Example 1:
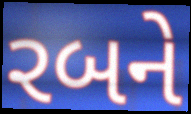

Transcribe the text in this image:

રબને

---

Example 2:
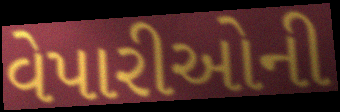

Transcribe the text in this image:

વેપારીઓની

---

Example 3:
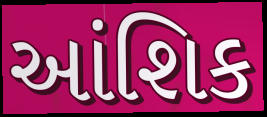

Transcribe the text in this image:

આંશિક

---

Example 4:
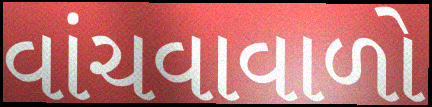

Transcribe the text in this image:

વાંચવાવાળો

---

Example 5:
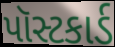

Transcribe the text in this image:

પૉસ્ટકાર્ડ